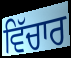
ਵਿੱਚਾਰ